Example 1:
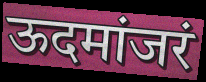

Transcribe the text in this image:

ऊदमांजरं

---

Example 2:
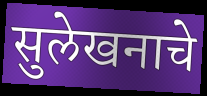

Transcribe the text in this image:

सुलेखनाचे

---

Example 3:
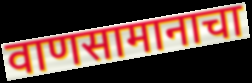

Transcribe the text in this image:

वाणसामानाचा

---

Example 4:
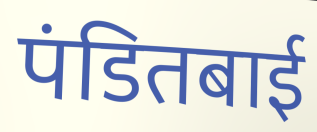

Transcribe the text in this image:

पंडितबाई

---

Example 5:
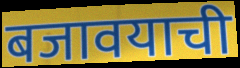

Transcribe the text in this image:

बजावयाची